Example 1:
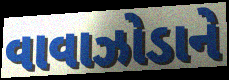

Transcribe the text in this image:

વાવાઝોડાને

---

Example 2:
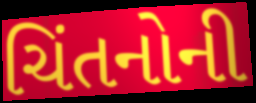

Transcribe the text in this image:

ચિંતનોની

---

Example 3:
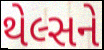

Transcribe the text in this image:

થેલ્સને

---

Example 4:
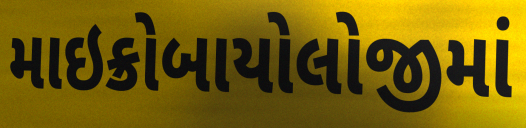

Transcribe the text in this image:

માઇક્રોબાયોલોજીમાં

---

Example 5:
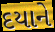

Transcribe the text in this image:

દયાને